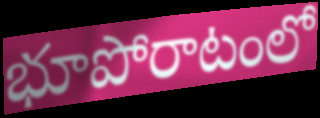
భూపోరాటంలో